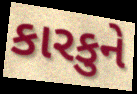
કારકુને